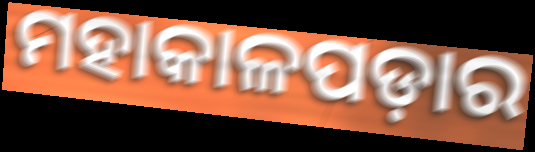
ମହାକାଳପଡ଼ାର